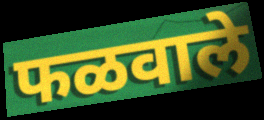
फळवाले